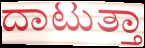
ದಾಟುತ್ತಾ